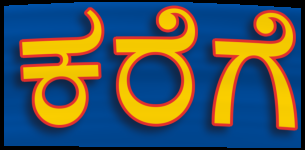
ಕರೆಗೆ